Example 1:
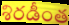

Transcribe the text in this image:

శిరడీంత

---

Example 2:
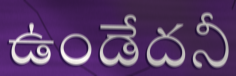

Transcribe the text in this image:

ఉండేదనీ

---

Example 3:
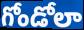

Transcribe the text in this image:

గోండోలా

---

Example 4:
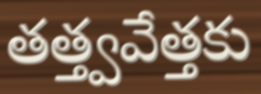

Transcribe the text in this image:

తత్త్వవేత్తకు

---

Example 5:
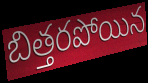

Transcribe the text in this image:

బిత్తరపోయిన